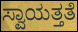
ಸ್ವಾಯತ್ತತೆ